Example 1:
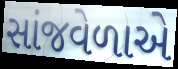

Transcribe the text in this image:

સાંજવેળાએ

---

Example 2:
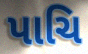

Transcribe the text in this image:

પાચિ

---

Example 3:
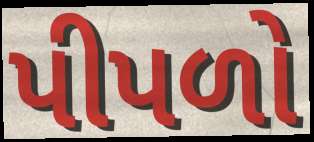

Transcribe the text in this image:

પીપળો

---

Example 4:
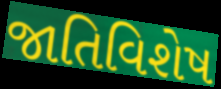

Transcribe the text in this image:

જાતિવિશેષ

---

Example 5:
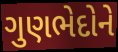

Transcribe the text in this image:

ગુણભેદોને